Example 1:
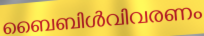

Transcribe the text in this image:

ബൈബിൾവിവരണം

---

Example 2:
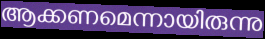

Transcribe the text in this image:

ആക്കണമെന്നായിരുന്നു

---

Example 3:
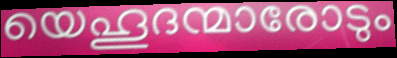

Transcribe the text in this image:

യെഹൂദന്മാരോടും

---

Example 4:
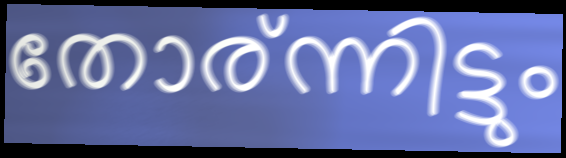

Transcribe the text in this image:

തോര്ന്നിട്ടും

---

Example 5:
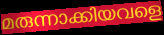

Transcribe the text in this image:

മരുന്നാക്കിയവളെ